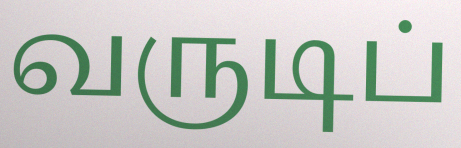
வருடிப்